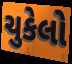
ચુકેલો